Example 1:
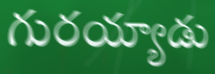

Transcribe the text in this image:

గురయ్యాడు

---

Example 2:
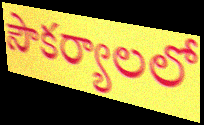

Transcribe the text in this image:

సౌకర్యాలలో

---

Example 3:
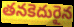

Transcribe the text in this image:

తనకెదురైన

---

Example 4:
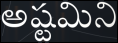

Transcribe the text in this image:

అష్టమిని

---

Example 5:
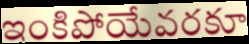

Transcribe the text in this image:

ఇంకిపోయేవరకూ